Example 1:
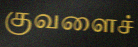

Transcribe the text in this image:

குவளைச்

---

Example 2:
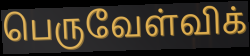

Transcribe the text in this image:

பெருவேள்விக்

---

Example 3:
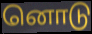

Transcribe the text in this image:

னொடு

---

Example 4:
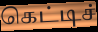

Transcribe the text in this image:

கெட்டிச்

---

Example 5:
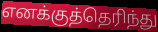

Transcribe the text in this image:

எனக்குத்தெரிந்து